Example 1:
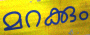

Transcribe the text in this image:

മറക്കും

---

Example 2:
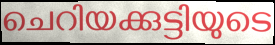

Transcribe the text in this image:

ചെറിയക്കുട്ടിയുടെ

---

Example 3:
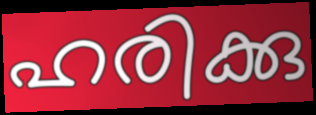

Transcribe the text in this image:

ഹരിക്കു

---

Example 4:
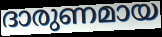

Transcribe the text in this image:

ദാരുണമായ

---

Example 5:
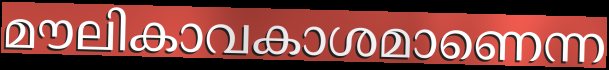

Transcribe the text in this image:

മൗലികാവകാശമാണെന്ന